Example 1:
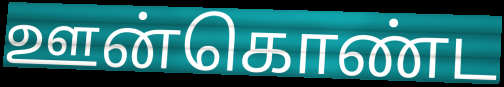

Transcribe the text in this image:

ஊன்கொண்ட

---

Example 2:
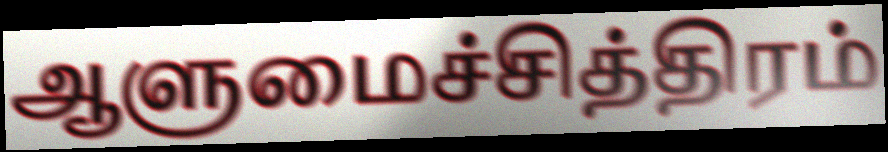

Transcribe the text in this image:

ஆளுமைச்சித்திரம்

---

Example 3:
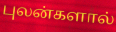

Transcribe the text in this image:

புலன்களால்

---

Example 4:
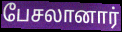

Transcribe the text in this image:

பேசலானார்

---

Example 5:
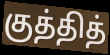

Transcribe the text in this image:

குத்தித்